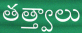
తత్త్వాలు